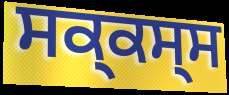
ਸਕ੍ਕਸ੍ਸ